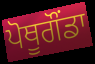
ਪੋਥੂਗੌਂਡਾ